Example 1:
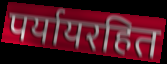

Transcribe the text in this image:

पर्यायरहित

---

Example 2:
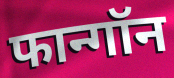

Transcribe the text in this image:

फान्गॉन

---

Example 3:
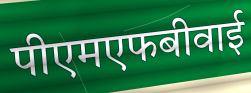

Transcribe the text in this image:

पीएमएफबीवाई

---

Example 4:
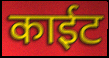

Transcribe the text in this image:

काईट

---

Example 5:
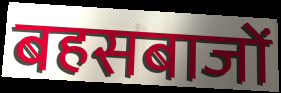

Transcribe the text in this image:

बहसबाजों